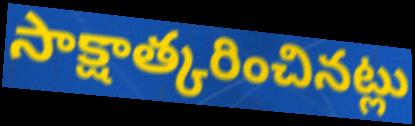
సాక్షాత్కరించినట్లు